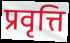
प्रवृत्ति